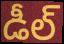
డీల్